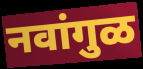
नवांगुळ